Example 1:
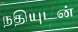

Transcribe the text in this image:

நதியுடன்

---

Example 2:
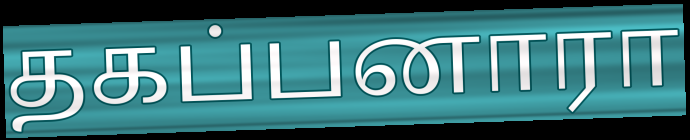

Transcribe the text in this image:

தகப்பனாரா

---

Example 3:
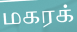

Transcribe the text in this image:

மகரக்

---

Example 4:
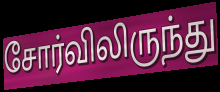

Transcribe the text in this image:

சோர்விலிருந்து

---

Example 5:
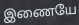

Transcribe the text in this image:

இணையே